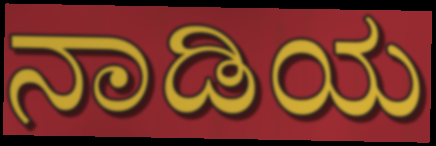
ನಾಡಿಯ